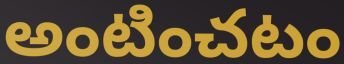
అంటించటం